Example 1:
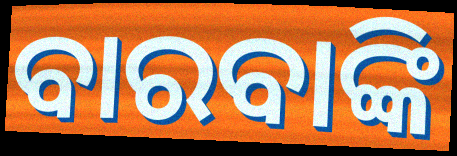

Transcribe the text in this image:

ବାରବାଙ୍କି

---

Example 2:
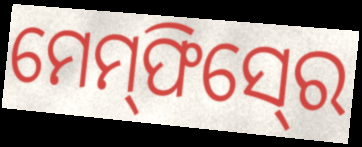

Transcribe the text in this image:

ମେମ୍‍ଫିସ୍‍ରେ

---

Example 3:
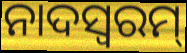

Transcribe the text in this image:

ନାଦସ୍ଵରମ୍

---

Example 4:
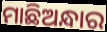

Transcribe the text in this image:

ମାଛିଅନ୍ଧାର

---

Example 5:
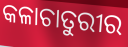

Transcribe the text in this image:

କଳାଚାତୁରୀର